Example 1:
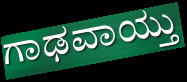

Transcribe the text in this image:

ಗಾಢವಾಯ್ತು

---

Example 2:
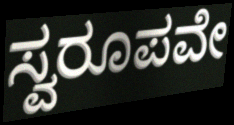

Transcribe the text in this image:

ಸ್ವರೂಪವೇ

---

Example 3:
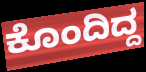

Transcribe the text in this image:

ಕೊಂದಿದ್ದ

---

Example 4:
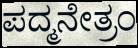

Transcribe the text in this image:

ಪದ್ಮನೇತ್ರಂ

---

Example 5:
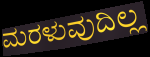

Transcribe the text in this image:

ಮರಳುವುದಿಲ್ಲ